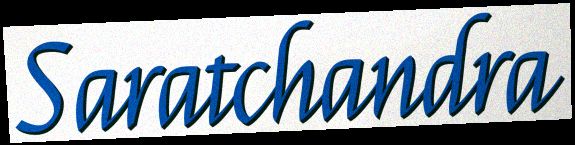
Saratchandra